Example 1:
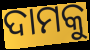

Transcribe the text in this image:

ଦାମକୁ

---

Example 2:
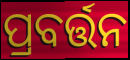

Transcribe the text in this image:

ପ୍ରବର୍ତ୍ତନ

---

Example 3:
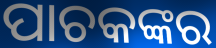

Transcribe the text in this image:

ପାଚକଙ୍କର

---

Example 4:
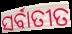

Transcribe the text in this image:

ସର୍ବାତୀତ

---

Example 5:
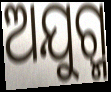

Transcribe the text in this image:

ଅଯୁଗ୍ମ